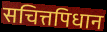
सचित्तपिधान